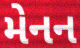
મેનન